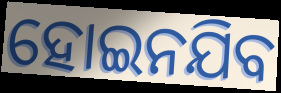
ହୋଇନଯିବ